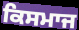
ਕਿਸਮਾਜ